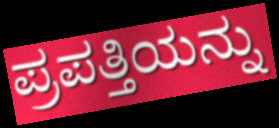
ಪ್ರಪತ್ತಿಯನ್ನು